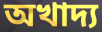
অখাদ্য